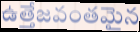
ఉత్తేజవంతమైన